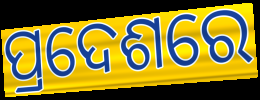
ପ୍ରଦେଶରେ